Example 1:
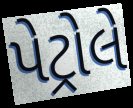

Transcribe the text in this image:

પેટ્રોલે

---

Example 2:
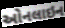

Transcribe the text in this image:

ઓનલાઇન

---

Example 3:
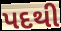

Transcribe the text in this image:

પદથી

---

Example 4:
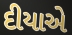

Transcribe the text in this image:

દીયાએ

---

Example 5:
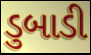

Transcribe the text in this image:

ડુબાડી